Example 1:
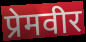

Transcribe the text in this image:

प्रेमवीर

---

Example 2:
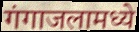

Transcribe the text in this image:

गंगाजलामध्ये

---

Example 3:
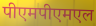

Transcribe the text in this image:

पीएमपीएमएल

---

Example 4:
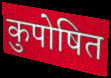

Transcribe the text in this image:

कुपोषित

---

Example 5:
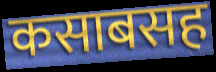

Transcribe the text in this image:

कसाबसह